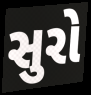
સુરો